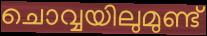
ചൊവ്വയിലുമുണ്ട്